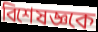
বিশেষজ্ঞকে